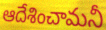
ఆదేశించామనీ